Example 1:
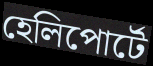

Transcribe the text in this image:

হেলিপোর্টে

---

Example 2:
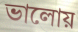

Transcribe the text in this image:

ভালোয়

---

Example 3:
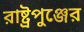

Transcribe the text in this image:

রাষ্ট্রপুঞ্জের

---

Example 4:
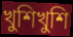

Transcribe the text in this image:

খুশিখুশি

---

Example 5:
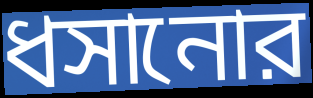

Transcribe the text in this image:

ধসানোর